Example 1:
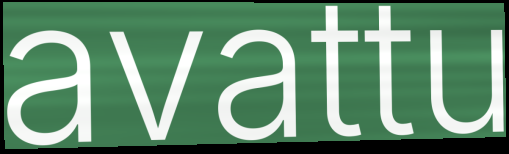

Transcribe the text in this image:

avattu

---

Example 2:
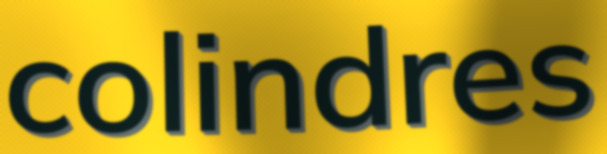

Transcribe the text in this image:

colindres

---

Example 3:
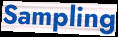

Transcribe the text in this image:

Sampling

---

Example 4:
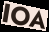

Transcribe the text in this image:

IOA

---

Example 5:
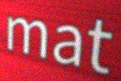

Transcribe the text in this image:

mat